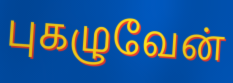
புகழுவேன்